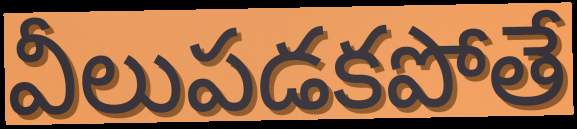
వీలుపడకపోతే